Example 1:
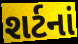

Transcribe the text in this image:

શર્ટનાં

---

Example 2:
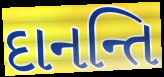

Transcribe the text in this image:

દાનન્તિ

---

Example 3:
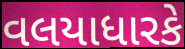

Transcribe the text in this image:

વલયાધારકે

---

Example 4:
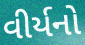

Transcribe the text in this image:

વીર્યનો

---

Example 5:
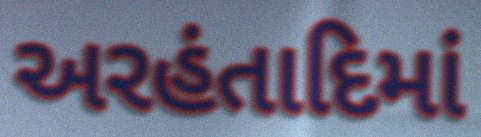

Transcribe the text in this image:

અરહંતાદિમાં